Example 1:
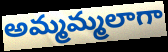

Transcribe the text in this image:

అమ్మమ్మలాగా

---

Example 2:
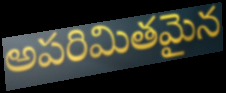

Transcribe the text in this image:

అపరిమితమైన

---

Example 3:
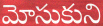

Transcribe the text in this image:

మోసుకుని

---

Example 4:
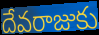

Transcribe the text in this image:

దేవరాజుకు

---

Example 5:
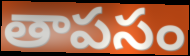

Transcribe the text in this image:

తాపసం